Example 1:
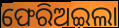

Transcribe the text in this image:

ଫେରିଅଇଲା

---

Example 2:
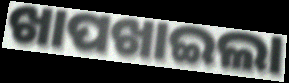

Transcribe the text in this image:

ଖାପଖାଇଲା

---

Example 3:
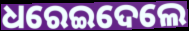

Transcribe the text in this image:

ଧରେଇଦେଲେ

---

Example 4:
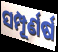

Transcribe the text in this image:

ସମ୍ପୂର୍ଣର୍ଷ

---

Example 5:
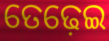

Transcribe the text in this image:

ତେଢ଼େଇ